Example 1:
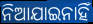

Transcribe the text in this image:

ନିଆଯାଇନାହିଁ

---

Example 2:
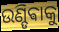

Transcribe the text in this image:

ଉଣ୍ଡିଵାକୁ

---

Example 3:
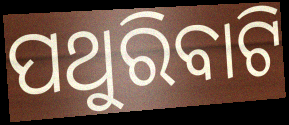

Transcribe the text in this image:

ପଥୁରିବାଟି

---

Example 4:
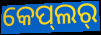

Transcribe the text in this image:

କେପ୍‌ଲର୍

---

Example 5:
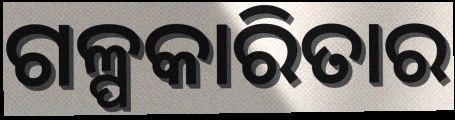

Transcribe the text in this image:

ଗଳ୍ପକାରିତାର